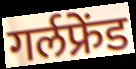
गर्लफ्रेंड